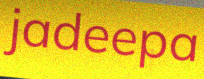
jadeepa